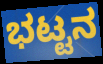
ಭಟ್ಟನ